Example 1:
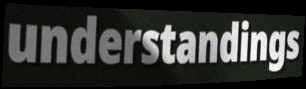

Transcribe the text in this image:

understandings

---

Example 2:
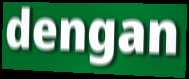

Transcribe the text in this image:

dengan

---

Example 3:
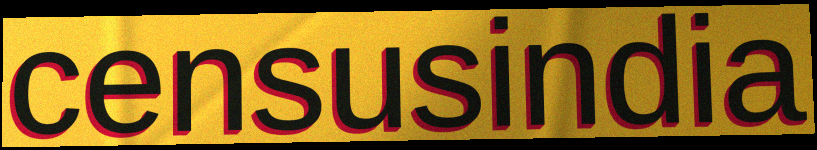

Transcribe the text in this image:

censusindia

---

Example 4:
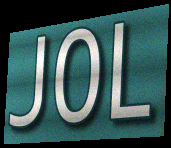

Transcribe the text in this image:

JOL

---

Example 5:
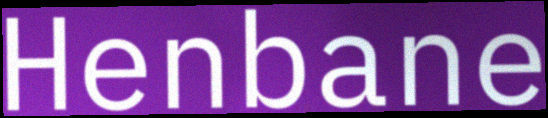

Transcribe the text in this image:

Henbane